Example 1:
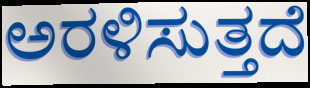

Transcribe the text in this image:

ಅರಳಿಸುತ್ತದೆ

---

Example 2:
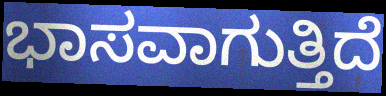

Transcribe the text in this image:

ಭಾಸವಾಗುತ್ತಿದೆ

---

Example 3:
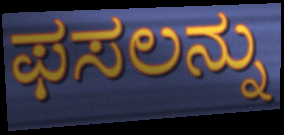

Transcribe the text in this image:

ಫಸಲನ್ನು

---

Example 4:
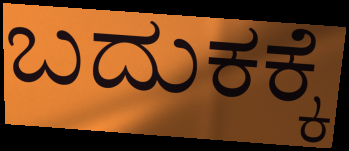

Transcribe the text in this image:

ಬದುಕಕ್ಕೆ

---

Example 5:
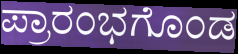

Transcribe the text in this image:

ಪ್ರಾರಂಭಗೊಂಡ